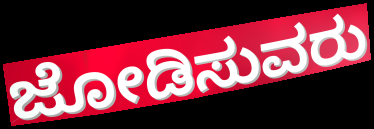
ಜೋಡಿಸುವರು